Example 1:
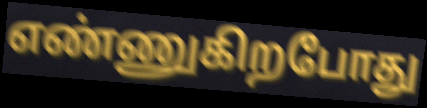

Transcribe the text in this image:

எண்ணுகிறபோது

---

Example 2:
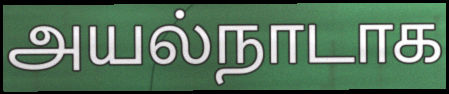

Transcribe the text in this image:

அயல்நாடாக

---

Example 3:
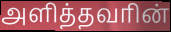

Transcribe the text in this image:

அளித்தவரின்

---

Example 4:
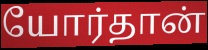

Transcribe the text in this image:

யோர்தான்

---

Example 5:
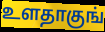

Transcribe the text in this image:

உளதாகுங்